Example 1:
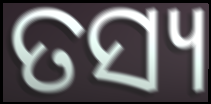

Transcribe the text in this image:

ତସ୍ୟ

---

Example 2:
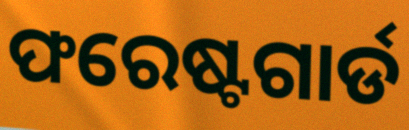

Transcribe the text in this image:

ଫରେଷ୍ଟଗାର୍ଡ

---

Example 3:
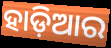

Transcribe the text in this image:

ହାଡ଼ିଆର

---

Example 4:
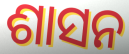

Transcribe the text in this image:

ଶାସନ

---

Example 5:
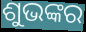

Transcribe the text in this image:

ଶୁଭଙ୍କର